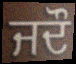
ਜਦੌ